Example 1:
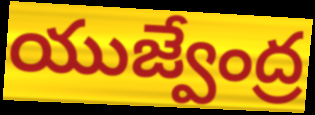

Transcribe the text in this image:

యుజ్వేంద్ర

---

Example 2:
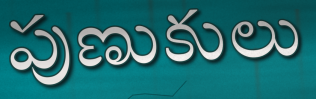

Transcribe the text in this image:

పుణుకులు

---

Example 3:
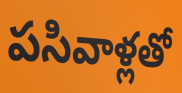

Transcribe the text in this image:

పసివాళ్లతో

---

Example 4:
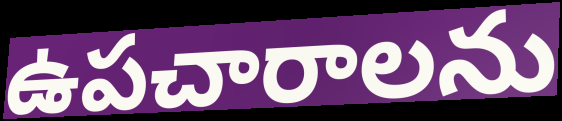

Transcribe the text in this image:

ఉపచారాలను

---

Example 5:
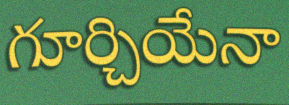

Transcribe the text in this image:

గూర్చియేనా